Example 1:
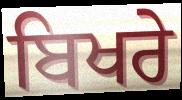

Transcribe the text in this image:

ਬਿਖਰੇ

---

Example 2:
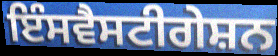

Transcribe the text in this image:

ਇੰਸਵੈਸਟੀਗੇਸ਼ਨ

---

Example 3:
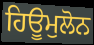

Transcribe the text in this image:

ਹਿਊਮੁਲੋਨ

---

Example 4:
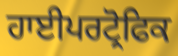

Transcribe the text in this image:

ਹਾਈਪਰਟ੍ਰੋਫਿਕ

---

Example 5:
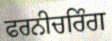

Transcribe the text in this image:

ਫਰਨੀਚਰਿੰਗ